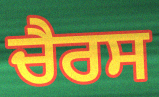
ਚੈਰਸ